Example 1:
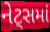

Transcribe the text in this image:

નેટ્સમાં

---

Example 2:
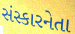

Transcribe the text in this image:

સંસ્કારનેતા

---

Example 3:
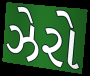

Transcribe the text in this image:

ઝેરો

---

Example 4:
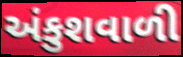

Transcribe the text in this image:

અંકુશવાળી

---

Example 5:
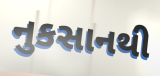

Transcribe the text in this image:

નુકસાનથી